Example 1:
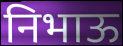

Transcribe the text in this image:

निभाऊ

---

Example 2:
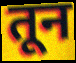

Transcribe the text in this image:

तून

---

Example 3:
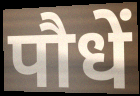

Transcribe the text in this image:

पौधें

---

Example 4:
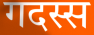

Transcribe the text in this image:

गदस्स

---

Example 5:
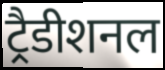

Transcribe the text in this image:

ट्रैडीशनल